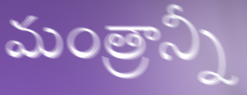
మంత్రాన్నీ